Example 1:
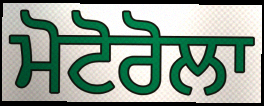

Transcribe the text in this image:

ਮੋਟੋਰੋਲਾ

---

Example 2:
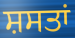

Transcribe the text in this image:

ਸ਼ਸਤਾਂ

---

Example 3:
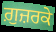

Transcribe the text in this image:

ਗ਼ੁਜ਼ਰਕੇ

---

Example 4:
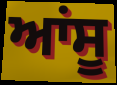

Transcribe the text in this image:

ਆਂਸੂ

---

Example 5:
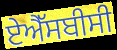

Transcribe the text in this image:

ਏਐੱਸਬੀਸੀ